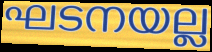
ഘടനയല്ല